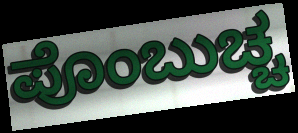
ಪೊಂಬುಚ್ಚ